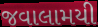
જવાલામયી